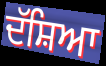
ਦੱਸ਼ਿਆ